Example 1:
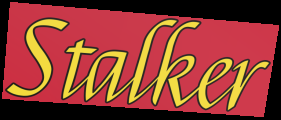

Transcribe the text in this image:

Stalker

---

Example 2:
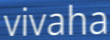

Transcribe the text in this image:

vivaha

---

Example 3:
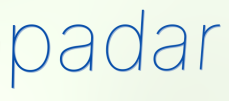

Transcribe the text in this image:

padar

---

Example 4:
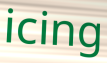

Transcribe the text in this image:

icing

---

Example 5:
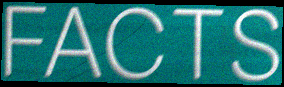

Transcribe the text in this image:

FACTS